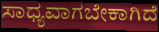
ಸಾಧ್ಯವಾಗಬೇಕಾಗಿದೆ